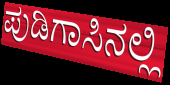
ಪುಡಿಗಾಸಿನಲ್ಲಿ